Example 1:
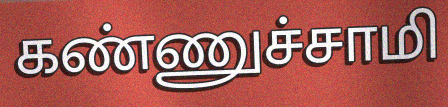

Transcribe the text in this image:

கண்ணுச்சாமி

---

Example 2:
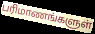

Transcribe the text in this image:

பரிமாணங்களுள்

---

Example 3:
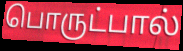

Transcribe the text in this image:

பொருட்பால்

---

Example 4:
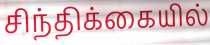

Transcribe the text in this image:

சிந்திக்கையில்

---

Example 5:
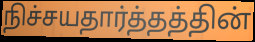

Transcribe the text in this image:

நிச்சயதார்த்தத்தின்